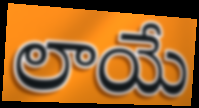
లాయే